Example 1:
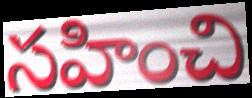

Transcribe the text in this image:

సహించి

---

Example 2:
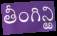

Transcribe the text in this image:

తీంగిన్ఱి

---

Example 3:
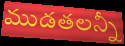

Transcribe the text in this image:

ముడతలన్నీ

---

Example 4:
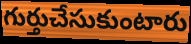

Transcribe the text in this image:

గుర్తుచేసుకుంటారు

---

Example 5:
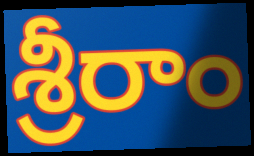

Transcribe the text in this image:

శ్రీరాం